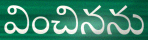
వించినను